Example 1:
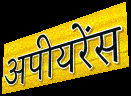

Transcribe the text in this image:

अपीयरेंस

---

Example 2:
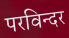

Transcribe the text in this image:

परविन्दर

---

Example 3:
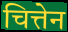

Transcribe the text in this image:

चित्तेन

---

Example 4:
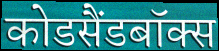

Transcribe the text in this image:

कोडसैंडबॉक्स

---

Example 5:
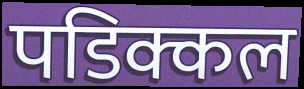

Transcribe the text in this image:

पडिक्कल